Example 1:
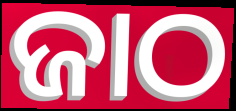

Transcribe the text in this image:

ଜାଠ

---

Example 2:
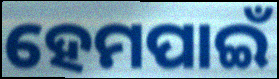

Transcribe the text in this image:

ହେମପାଇଁ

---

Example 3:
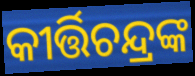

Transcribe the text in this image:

କୀର୍ତ୍ତିଚନ୍ଦ୍ରଙ୍କ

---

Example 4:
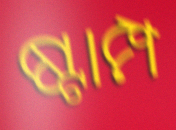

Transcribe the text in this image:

ଷ୍ଟାମ୍ପ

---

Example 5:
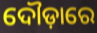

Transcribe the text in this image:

ଦୌଡ଼ାରେ